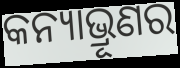
କନ୍ୟାଭ୍ରୂଣର